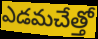
ఎడమచేత్తో